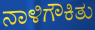
ನಾಳಿಗೌಕಿತು